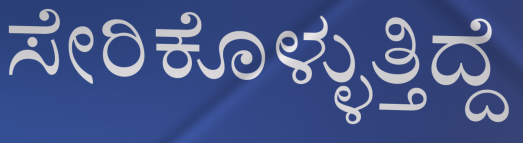
ಸೇರಿಕೊಳ್ಳುತ್ತಿದ್ದೆ